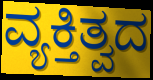
ವ್ಯಕ್ತಿತ್ವದ